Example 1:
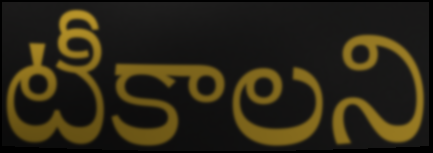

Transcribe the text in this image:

టీకాలని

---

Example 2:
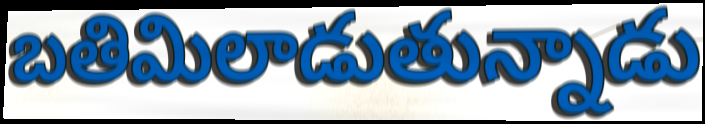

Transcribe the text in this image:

బతిమిలాడుతున్నాడు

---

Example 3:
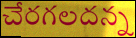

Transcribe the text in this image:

చేరగలదన్న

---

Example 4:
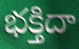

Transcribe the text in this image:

భక్తిదా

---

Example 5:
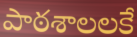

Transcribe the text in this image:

పాఠశాలలకే